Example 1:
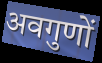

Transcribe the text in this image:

अवगुणों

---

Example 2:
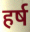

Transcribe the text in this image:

हर्ष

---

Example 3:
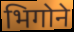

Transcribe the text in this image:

भिगोने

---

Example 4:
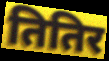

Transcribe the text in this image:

तितिर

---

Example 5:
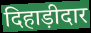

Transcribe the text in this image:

दिहाड़ीदार